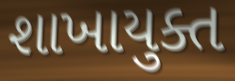
શાખાયુક્ત